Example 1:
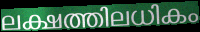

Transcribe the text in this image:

ലക്ഷത്തിലധികം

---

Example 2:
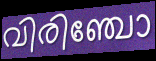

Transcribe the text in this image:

വിരിഞ്ചോ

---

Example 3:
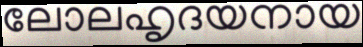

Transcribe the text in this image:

ലോലഹൃദയനായ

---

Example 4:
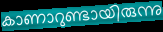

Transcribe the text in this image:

കാണാറുണ്ടായിരുന്നു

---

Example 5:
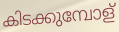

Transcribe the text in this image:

കിടക്കുമ്പോള്